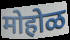
मोहोळ